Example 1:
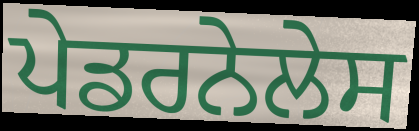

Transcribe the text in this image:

ਪੇਡਰਨੇਲੇਸ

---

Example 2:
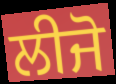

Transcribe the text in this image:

ਲੀਜੋ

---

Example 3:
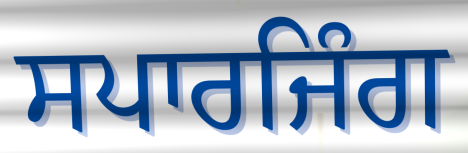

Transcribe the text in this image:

ਸਪਾਰਜਿੰਗ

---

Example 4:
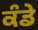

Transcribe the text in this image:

ਕੰਡੇ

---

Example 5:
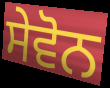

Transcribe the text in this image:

ਸੇਵੋਨ